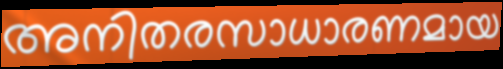
അനിതരസാധാരണമായ